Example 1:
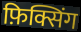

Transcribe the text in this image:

फ़िक्सिंग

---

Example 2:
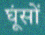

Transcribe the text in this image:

घूंसों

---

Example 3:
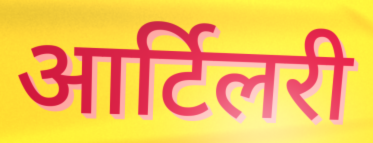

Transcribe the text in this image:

आर्टिलरी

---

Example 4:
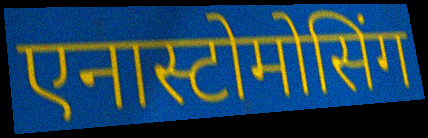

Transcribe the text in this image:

एनास्टोमोसिंग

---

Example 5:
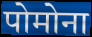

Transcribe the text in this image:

पोमोना